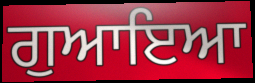
ਗੁਆਇਆ